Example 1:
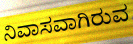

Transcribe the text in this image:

ನಿವಾಸವಾಗಿರುವ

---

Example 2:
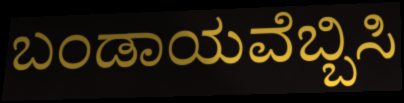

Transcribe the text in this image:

ಬಂಡಾಯವೆಬ್ಬಿಸಿ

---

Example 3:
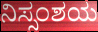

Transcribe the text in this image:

ನಿಸ್ಸಂಶಯ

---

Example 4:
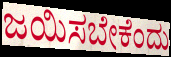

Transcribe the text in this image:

ಜಯಿಸಬೇಕೆಂದು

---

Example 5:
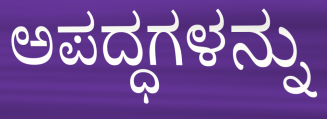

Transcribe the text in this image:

ಅಪದ್ಧಗಳನ್ನು